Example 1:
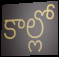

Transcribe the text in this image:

కాల్లో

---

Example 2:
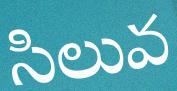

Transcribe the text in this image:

సిలువ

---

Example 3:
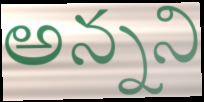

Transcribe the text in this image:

అన్నని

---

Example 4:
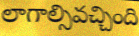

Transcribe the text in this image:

లాగాల్సివచ్చింది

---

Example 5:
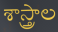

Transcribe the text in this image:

శాస్త్రాల